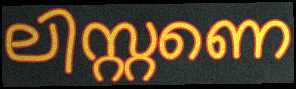
ലിസ്റ്റണെ